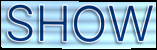
SHOW